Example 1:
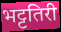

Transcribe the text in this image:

भट्टतिरी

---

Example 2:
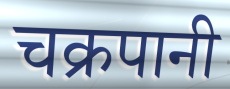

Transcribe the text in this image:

चक्रपानी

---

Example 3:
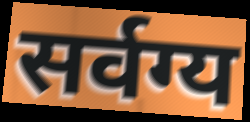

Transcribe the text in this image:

सर्वग्य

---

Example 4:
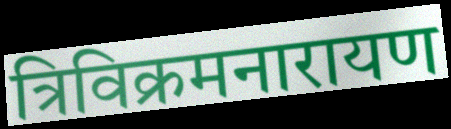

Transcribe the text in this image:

त्रिविक्रमनारायण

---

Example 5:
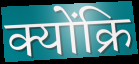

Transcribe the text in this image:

क्योंक्रि